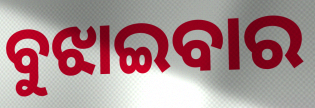
ବୁଝାଇବାର